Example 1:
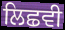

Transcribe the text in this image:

ਲਿਛਵੀ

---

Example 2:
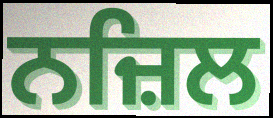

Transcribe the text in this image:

ਨਜ਼ਿਲ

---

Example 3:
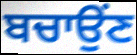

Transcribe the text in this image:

ਬਚਾਉਂਣ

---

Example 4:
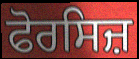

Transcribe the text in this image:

ਫੋਰਸਿਜ਼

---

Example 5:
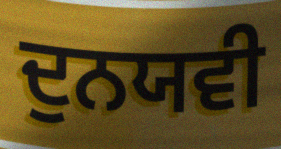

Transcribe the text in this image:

ਦੁਨਯਵੀ